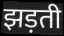
झड़ती